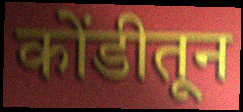
कोंडीतून